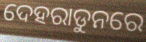
ଦେହରାଡୁନରେ